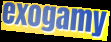
exogamy